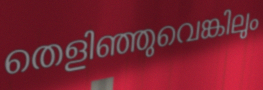
തെളിഞ്ഞുവെങ്കിലും